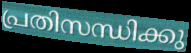
പ്രതിസന്ധിക്കു